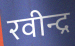
रवीन्द्र